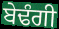
ਬੇਢੰਗੀ